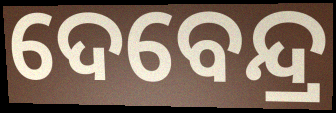
ଦେବେନ୍ଦ୍ର